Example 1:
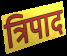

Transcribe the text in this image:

त्रिपाद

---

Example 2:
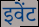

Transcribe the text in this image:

इवेंट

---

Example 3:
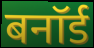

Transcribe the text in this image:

बनॉर्ड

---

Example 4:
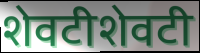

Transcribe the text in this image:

शेवटीशेवटी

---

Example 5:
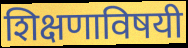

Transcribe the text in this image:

शिक्षणाविषयी